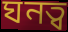
ঘনত্ব